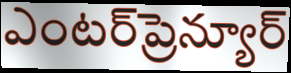
ఎంటర్‌ప్రెన్యూర్